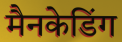
मैनकेडिंग